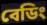
বেডিং